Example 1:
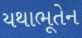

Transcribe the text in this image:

યથાભૂતેન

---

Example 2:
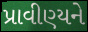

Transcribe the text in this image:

પ્રાવીણ્યને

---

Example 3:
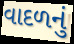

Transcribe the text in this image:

વાદળનું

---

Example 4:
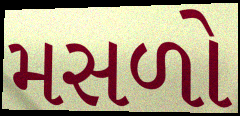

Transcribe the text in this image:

મસળો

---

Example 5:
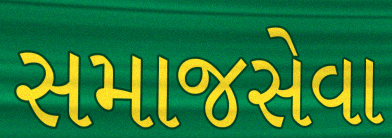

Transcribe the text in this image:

સમાજસેવા